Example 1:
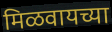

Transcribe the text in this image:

मिळवायच्या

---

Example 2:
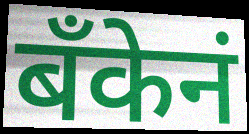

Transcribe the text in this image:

बॅंकेनं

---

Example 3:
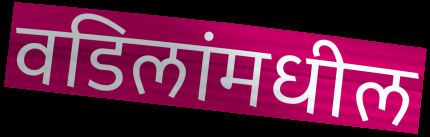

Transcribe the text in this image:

वडिलांमधील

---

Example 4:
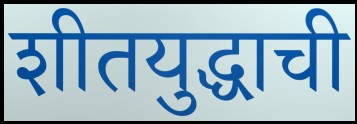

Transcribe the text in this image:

शीतयुद्धाची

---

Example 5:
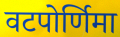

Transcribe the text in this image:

वटपोर्णिमा